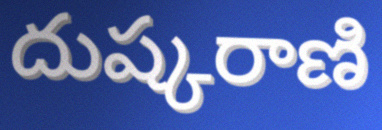
దుష్కరాణి